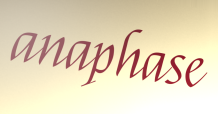
anaphase